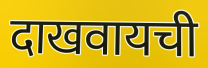
दाखवायची